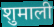
शुमाली